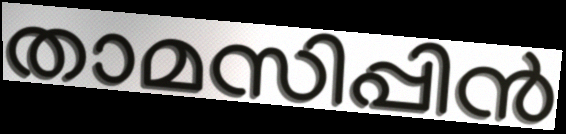
താമസിപ്പിൻ